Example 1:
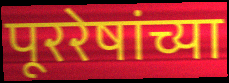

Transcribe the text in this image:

पूररेषांच्या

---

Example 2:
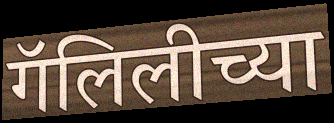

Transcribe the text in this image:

गॅलिलीच्या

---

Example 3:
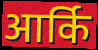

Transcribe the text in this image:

आर्कि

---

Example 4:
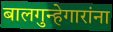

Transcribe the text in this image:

बालगुन्हेगारांना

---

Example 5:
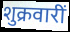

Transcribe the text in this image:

शुक्रवारीं